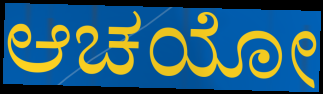
ಆಚಯೋ